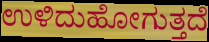
ಉಳಿದುಹೋಗುತ್ತದೆ